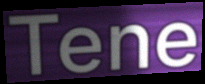
Tene